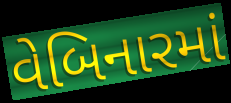
વેબિનારમાં